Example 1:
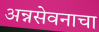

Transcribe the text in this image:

अन्नसेवनाचा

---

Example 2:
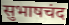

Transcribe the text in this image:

सुभाषचंद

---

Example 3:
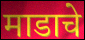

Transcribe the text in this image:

माडाचे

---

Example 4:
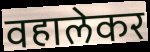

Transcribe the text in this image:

वहालेकर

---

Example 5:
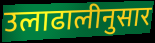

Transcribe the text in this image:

उलाढालीनुसार